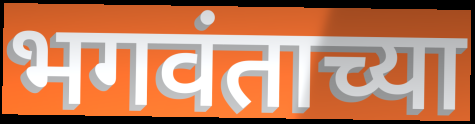
भगवंताच्या